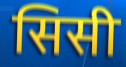
सिसी